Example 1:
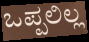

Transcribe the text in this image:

ಒಪ್ಪಲಿಲ್ಲ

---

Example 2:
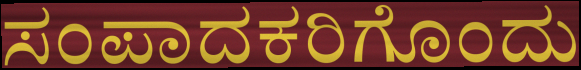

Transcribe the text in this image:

ಸಂಪಾದಕರಿಗೊಂದು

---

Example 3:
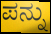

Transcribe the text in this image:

ಪನ್ನು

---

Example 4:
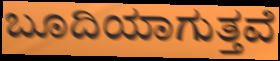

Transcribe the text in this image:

ಬೂದಿಯಾಗುತ್ತವೆ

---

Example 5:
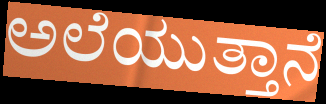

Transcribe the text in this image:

ಅಲೆಯುತ್ತಾನೆ